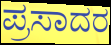
ಪ್ರಸಾದರ